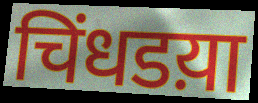
चिंधडय़ा